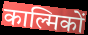
काल्मिकों